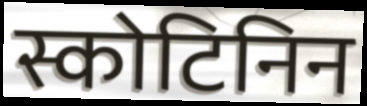
स्कोटिनिन